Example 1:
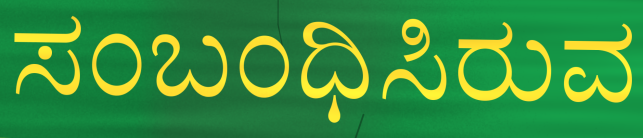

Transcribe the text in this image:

ಸಂಬಂಧಿಸಿರುವ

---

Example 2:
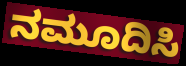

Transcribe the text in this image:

ನಮೂದಿಸಿ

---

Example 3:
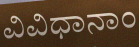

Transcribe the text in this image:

ವಿವಿಧಾನಾಂ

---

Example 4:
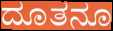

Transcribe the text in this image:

ದೂತನೂ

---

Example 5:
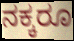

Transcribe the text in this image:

ನಕ್ಕರೂ